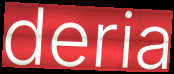
deria